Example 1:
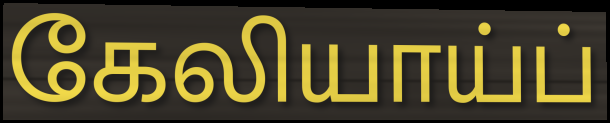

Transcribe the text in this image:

கேலியாய்ப்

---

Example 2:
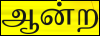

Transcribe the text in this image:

ஆன்ற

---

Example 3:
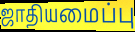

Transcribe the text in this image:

ஜாதியமைப்பு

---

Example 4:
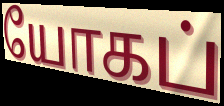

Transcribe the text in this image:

யோகப்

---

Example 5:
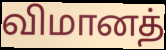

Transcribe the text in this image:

விமானத்